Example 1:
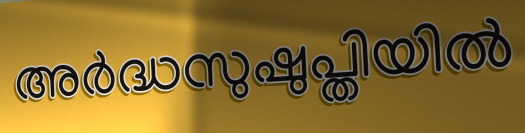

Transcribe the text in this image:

അർദ്ധസുഷുപ്തിയിൽ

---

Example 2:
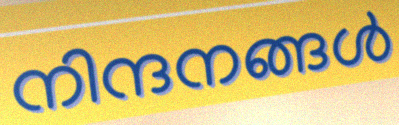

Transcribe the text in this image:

നിന്ദനങ്ങൾ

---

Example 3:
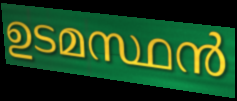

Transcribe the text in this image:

ഉടമസ്ഥൻ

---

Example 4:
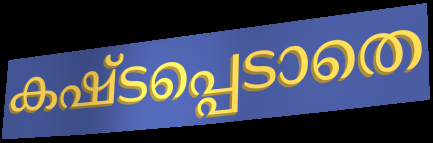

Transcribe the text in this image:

കഷ്ടപ്പെടാതെ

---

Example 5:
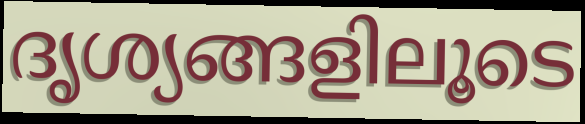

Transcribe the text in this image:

ദൃശ്യങ്ങളിലൂടെ